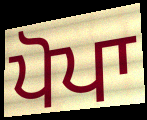
ਪੋਪਾ